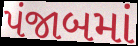
પંજાબમાં